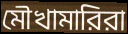
মৌখামারিরা